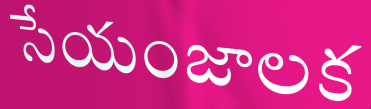
సేయంజాలక